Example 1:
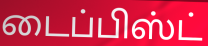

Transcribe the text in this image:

டைப்பிஸ்ட்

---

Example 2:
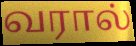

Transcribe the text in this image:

வரால்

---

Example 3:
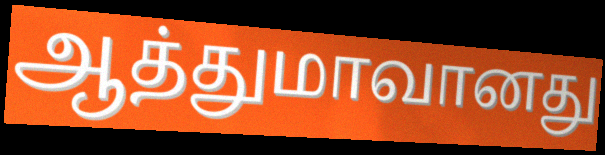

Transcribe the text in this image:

ஆத்துமாவானது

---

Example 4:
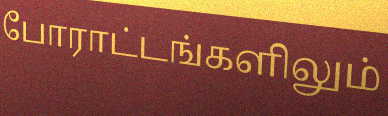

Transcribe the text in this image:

போராட்டங்களிலும்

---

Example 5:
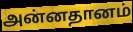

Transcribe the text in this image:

அன்னதானம்